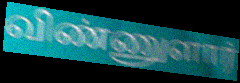
விண்ணுளார்